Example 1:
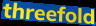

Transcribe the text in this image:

threefold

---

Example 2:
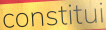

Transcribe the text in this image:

constitui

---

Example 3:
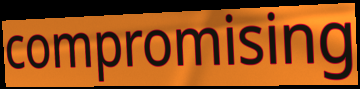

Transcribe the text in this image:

compromising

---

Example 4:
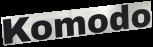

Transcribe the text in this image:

Komodo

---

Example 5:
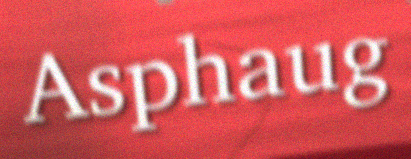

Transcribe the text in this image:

Asphaug